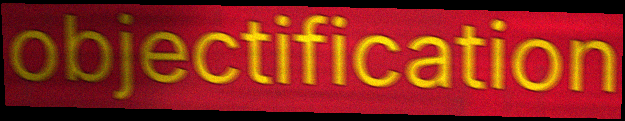
objectification